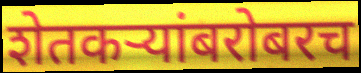
शेतकऱ्यांबरोबरच